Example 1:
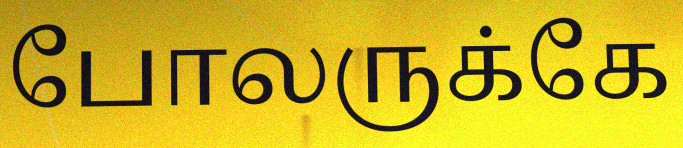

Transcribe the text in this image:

போலருக்கே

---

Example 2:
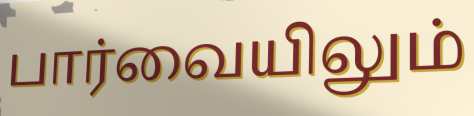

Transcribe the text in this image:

பார்வையிலும்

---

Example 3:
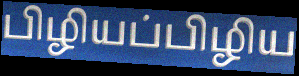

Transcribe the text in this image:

பிழியப்பிழிய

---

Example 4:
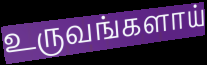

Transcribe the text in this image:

உருவங்களாய்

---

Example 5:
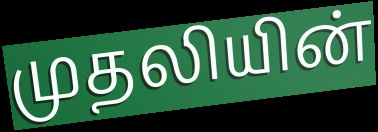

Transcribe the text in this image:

முதலியின்